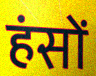
हंसों